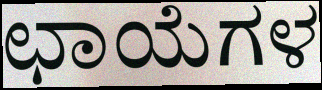
ಛಾಯೆಗಳ